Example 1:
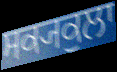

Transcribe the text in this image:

ਸਕ੍ਯਕੁਲਾ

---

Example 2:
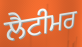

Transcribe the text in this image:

ਲੈਟੀਮਰ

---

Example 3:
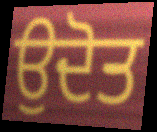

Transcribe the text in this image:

ਉਦੋਤ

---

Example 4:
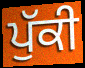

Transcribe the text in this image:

ਪੁੱਕੀ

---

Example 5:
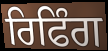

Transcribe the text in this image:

ਰਿਫਿੰਗ